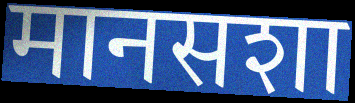
मानसशा